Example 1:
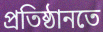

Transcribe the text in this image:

প্ৰতিষ্ঠানতে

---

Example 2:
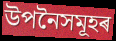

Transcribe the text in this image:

উপনৈসমূহৰ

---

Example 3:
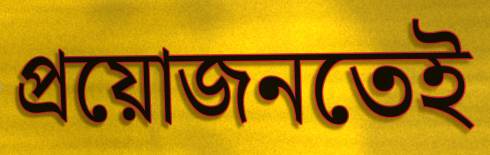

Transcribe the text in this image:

প্ৰয়োজনতেই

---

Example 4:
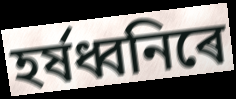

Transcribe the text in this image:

হৰ্ষধ্বনিৰে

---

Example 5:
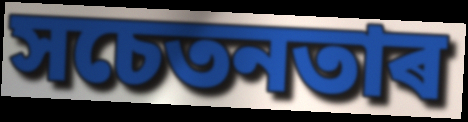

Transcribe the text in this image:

সচেতনতাৰ